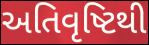
અતિવૃષ્ટિથી